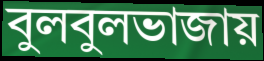
বুলবুলভাজায়